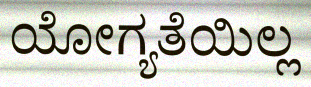
ಯೋಗ್ಯತೆಯಿಲ್ಲ